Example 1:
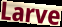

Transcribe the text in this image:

Larve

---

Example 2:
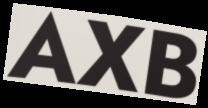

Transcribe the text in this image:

AXB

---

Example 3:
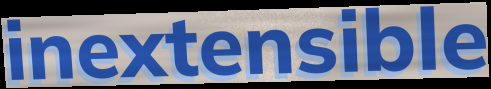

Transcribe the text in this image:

inextensible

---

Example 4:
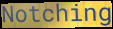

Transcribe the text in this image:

Notching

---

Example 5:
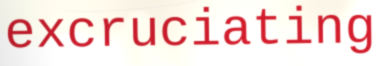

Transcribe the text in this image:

excruciating